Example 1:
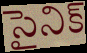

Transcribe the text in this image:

సైనిక్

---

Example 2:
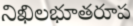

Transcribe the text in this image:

నిఖిలభూతరూప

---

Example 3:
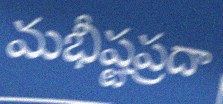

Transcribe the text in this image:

మభీష్టప్రదా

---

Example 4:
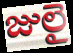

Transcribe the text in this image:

జులై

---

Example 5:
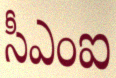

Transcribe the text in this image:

సీఎంఐ